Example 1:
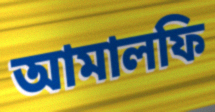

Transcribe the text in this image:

আমালফি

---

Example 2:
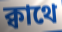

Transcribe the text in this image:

ক্বাথে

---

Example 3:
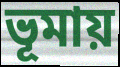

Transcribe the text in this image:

ভূমায়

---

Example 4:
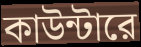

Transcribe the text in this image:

কাউন্টারে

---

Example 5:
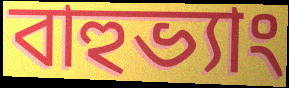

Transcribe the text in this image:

বাহুভ্যাং